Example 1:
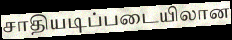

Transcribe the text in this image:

சாதியடிப்படையிலான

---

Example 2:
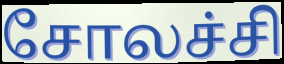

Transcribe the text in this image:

சோலச்சி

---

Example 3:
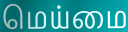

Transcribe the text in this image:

மெய்மை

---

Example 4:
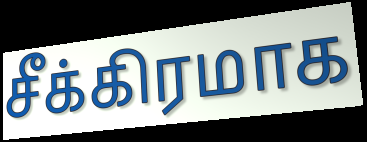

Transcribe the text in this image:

சீக்கிரமாக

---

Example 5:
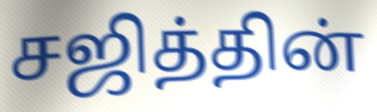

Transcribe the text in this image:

சஜித்தின்